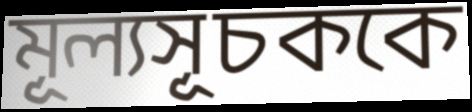
মূল্যসূচককে